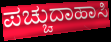
ಪಚ್ಚುದಾಹಾಸಿ